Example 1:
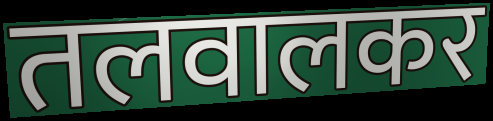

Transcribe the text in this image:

तलवालकर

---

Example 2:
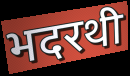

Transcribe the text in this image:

भदरथी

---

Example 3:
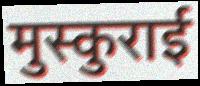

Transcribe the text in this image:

मुस्कुराई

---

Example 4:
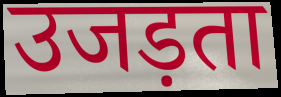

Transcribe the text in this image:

उजड़ता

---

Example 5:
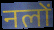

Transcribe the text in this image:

नलों